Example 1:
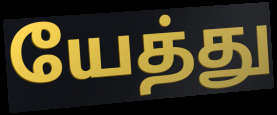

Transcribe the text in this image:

யேத்து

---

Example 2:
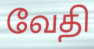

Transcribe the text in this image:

வேதி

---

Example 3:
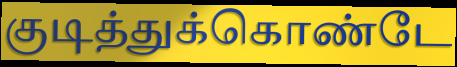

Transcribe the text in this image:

குடித்துக்கொண்டே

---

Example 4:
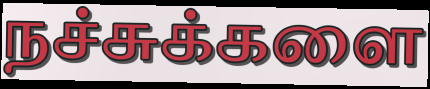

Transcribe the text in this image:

நச்சுக்களை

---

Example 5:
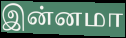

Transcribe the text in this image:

இன்னமா